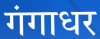
गंगाधर